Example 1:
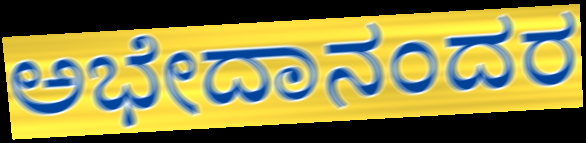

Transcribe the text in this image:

ಅಭೇದಾನಂದರ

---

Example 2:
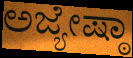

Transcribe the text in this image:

ಅಜ್ಯೇಷ್ಠಾ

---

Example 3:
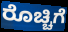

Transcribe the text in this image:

ರೊಚ್ಚಿಗೆ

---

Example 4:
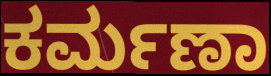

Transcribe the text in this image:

ಕರ್ಮಣಾ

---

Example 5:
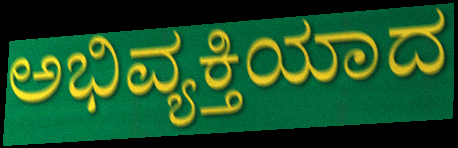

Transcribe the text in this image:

ಅಭಿವ್ಯಕ್ತಿಯಾದ